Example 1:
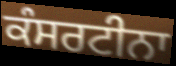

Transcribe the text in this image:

ਕੰਸਰਟੀਨਾ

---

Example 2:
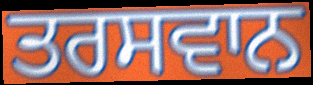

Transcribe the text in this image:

ਤਰਸਵਾਨ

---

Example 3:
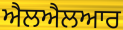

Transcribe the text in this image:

ਐਲਐਲਆਰ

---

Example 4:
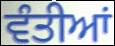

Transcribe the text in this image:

ਵੰਤੀਆਂ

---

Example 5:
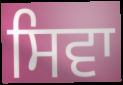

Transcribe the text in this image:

ਸਿਵਾ